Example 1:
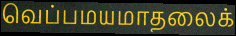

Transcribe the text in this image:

வெப்பமயமாதலைக்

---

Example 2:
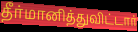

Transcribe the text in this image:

தீர்மானித்துவிட்டார்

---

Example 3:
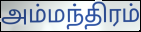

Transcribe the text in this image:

அம்மந்திரம்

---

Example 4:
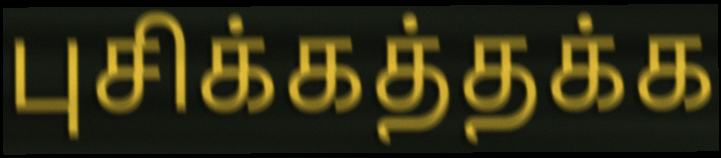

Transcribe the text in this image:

புசிக்கத்தக்க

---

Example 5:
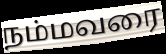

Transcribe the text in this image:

நம்மவரை